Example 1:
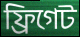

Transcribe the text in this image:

ফ্রিগেট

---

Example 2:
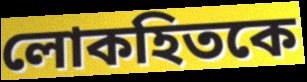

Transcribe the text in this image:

লোকহিতকে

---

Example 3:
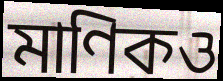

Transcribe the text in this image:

মাণিকও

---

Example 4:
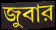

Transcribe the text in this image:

জুবার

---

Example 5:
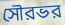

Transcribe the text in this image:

সৌরভর